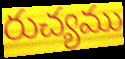
రుచ్యము